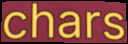
chars